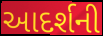
આદર્શની